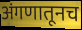
अंगणातूनच